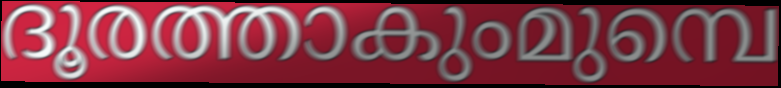
ദൂരത്താകുംമുമ്പെ